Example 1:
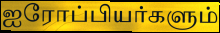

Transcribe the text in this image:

ஐரோப்பியர்களும்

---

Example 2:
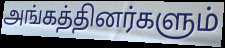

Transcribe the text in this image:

அங்கத்தினர்களும்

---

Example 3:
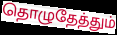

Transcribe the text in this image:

தொழுதேத்தும்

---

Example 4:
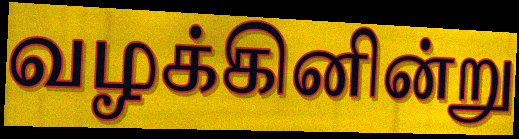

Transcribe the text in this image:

வழக்கினின்று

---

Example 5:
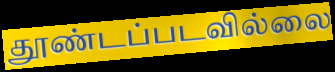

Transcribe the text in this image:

தூண்டப்படவில்லை